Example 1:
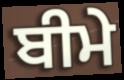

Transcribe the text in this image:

ਬੀਮੇ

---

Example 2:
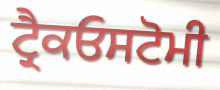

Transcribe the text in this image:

ਟ੍ਰੈਕਓਸਟੋਮੀ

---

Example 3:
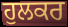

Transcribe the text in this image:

ਹੁਲਕਰ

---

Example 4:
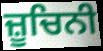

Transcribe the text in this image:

ਜ਼ੂਚਿਨੀ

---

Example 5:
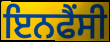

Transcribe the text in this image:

ਇਨਫੈਂਸੀ